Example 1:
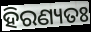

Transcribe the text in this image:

ହିରଣ୍ୟତଃ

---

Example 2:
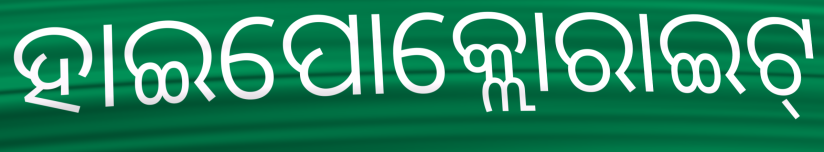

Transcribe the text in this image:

ହାଇପୋକ୍ଲୋରାଇଟ୍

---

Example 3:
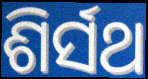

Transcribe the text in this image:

ଶିର୍ସଥ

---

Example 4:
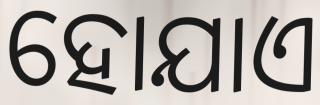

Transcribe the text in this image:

ହୋଯାଏ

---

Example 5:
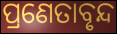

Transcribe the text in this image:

ପ୍ରଣେତାବୃନ୍ଦ